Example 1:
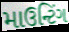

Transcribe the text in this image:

માઉન્ટિંગ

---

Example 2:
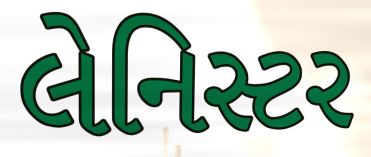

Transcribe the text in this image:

લેનિસ્ટર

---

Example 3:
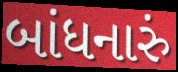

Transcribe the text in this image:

બાંધનારું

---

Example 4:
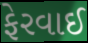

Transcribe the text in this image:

ફેરવાઈ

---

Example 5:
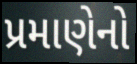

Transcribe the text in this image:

પ્રમાણેનો